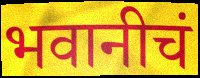
भवानीचं